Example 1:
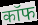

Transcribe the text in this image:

कॉफ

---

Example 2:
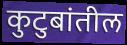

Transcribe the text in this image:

कुटुबांतील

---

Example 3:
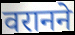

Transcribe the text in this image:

वरानने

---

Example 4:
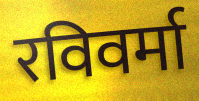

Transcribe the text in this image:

रविवर्मा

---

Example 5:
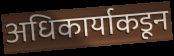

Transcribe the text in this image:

अधिकार्याकडून